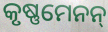
କୃଷ୍ଣମେନନ୍